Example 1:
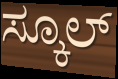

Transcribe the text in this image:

ಸ್ಕೂಲ್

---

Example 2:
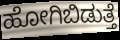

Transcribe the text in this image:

ಹೋಗಿಬಿಡುತ್ತೆ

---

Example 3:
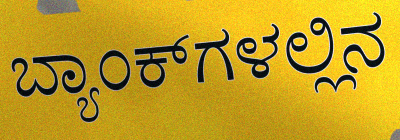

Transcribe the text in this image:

ಬ್ಯಾಂಕ್‌ಗಳಲ್ಲಿನ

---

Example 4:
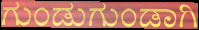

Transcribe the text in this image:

ಗುಂಡುಗುಂಡಾಗಿ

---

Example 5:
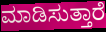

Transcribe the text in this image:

ಮಾಡಿಸುತ್ತಾರೆ